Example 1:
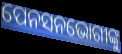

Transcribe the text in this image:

ପେନସନଭୋଗୀଙ୍କୁ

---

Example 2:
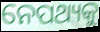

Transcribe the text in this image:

ନେପଥ୍ୟକୁ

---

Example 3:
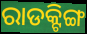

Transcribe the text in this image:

ରାଡକ୍ଟିଙ୍ଗ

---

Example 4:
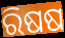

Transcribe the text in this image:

ରିଷଷ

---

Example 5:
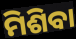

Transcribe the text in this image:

ମିଶିବା